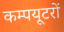
कम्पयूटरों